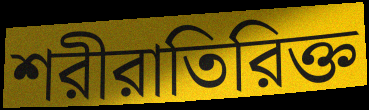
শরীরাতিরিক্ত